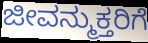
ಜೀವನ್ಮುಕ್ತರಿಗೆ